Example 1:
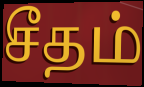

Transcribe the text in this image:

சீதம்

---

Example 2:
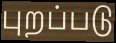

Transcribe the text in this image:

புறப்படு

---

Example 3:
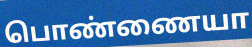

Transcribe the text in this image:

பொண்ணையா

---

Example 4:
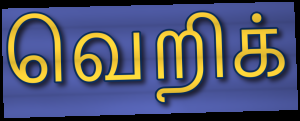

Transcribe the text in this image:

வெறிக்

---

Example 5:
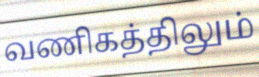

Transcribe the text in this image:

வணிகத்திலும்